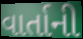
વાર્તાની